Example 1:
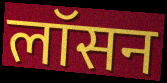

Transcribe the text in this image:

लॉसन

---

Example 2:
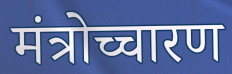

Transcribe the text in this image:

मंत्रोच्चारण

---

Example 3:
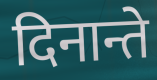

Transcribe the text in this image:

दिनान्ते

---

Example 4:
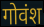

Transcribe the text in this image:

गोवंश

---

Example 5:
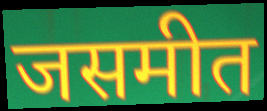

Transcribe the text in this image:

जसमीत